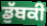
ਡੁੱਬਕੀ